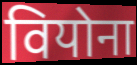
वियोना